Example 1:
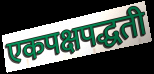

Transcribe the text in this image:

एकपक्षपद्धती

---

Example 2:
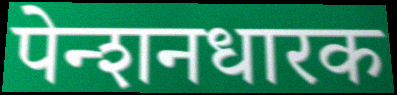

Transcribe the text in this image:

पेन्शनधारक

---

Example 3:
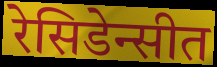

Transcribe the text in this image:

रेसिडेन्सीत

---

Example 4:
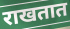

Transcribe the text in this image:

राखतात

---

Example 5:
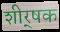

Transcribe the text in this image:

शीर्षक